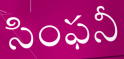
సింఫనీ